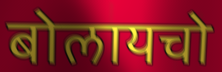
बोलायचो